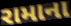
રામાના